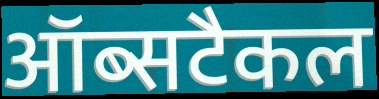
ऑब्सटैकल